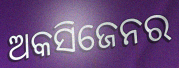
ଅକସିଜେନର